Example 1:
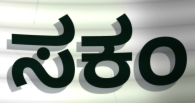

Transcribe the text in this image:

ಸಕಂ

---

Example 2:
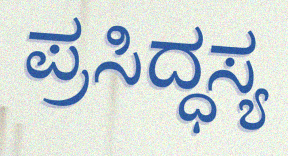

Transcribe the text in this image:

ಪ್ರಸಿದ್ಧಸ್ಯ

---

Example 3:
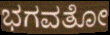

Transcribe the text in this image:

ಭಗವತೋ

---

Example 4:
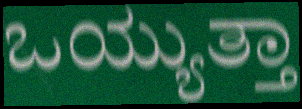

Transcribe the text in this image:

ಒಯ್ಯುತ್ತಾ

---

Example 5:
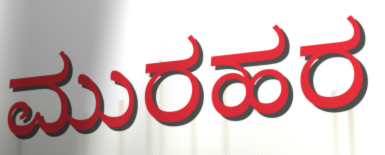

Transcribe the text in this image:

ಮುರಹರ